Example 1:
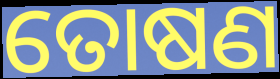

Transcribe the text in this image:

ତୋଷଣ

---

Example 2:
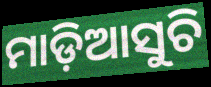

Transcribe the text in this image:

ମାଡ଼ିଆସୁଚି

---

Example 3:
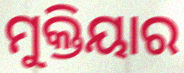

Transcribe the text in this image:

ମୁକ୍ତିୟାର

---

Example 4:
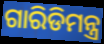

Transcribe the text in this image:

ଗାରିଡିମନ୍ତ୍ର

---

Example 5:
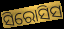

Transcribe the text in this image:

ସିରୋସିସ